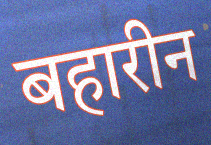
बहारीन